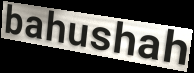
bahushah